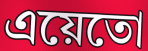
এয়েতো